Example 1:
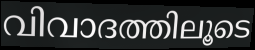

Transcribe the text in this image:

വിവാദത്തിലൂടെ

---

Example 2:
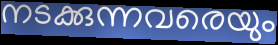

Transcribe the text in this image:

നടക്കുന്നവരെയും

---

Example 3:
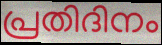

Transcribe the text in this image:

പ്രതിദിനം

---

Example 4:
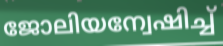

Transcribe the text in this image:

ജോലിയന്വേഷിച്ച്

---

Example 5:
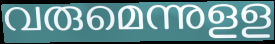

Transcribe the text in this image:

വരുമെന്നുളള